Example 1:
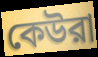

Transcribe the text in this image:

কেউরা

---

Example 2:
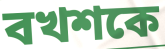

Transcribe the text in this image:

বখশকে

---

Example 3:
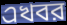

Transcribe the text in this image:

এখবর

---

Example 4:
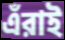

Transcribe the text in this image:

এঁরাই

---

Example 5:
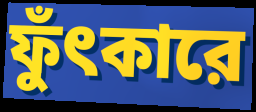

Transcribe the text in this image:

ফুঁৎকারে